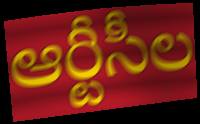
ఆర్టీసీల